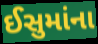
ઈસુમાંના